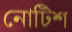
নোটিশ